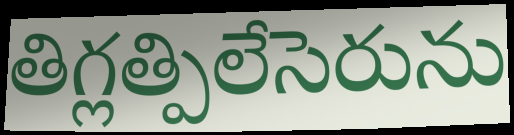
తిగ్లత్పిలేసెరును